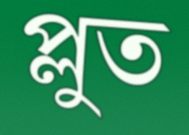
প্লুত